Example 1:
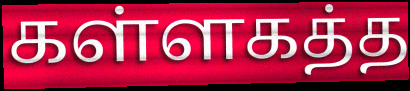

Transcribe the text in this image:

கள்ளகத்த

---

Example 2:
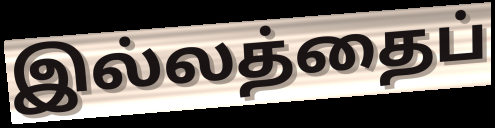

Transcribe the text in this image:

இல்லத்தைப்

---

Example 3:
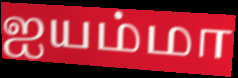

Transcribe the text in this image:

ஐயம்மா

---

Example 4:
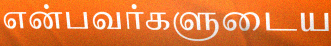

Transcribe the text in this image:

என்பவர்களுடைய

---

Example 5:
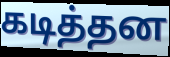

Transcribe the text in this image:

கடித்தன